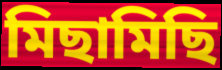
মিছামিছি